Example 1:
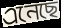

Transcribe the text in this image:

এনেছে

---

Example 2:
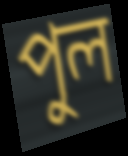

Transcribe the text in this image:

পুল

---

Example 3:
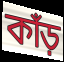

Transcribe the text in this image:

কাঁড়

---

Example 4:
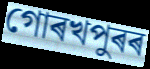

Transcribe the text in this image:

গোৰখপুৰৰ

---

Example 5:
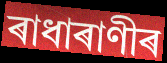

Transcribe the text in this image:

ৰাধাৰাণীৰ